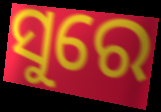
ସୁରେ